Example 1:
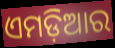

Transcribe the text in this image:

ଏମଡ଼ିଆର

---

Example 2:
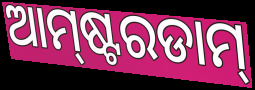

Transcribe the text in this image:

ଆମ୍‍ଷ୍ଟରଡାମ୍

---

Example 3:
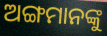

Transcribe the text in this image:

ଅଙ୍ଗମାନଙ୍କୁ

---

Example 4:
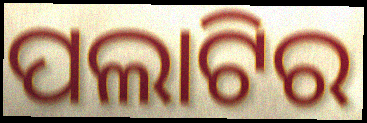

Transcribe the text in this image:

ପଲାଟିର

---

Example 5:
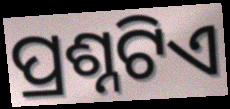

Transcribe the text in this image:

ପ୍ରଶ୍ନଟିଏ